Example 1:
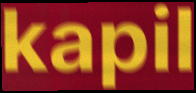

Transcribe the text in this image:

kapil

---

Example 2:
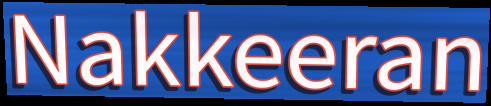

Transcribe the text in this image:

Nakkeeran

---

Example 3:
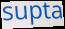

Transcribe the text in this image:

supta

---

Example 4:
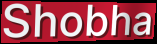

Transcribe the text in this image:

Shobha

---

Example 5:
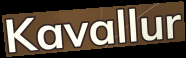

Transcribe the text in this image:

Kavallur